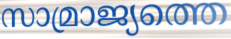
സാമ്രാജ്യത്തെ